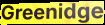
Greenidge